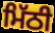
ਮਿੱਠੀ